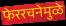
फेररचनेमुळे